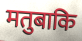
मतुबाकि